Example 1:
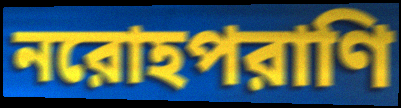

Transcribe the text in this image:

নরোহপরাণি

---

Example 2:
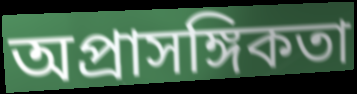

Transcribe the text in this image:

অপ্রাসঙ্গিকতা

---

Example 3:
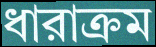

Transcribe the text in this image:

ধারাক্রম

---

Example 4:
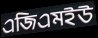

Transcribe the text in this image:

এজিএমইউ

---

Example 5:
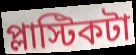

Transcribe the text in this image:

প্লাস্টিকটা